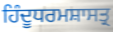
ਹਿੰਦੂਧਰਮਸ਼ਾਸਤ੍ਰ